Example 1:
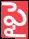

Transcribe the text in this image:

ఫై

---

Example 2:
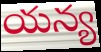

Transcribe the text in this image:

యన్య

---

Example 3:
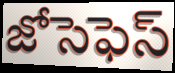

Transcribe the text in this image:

జోసెఫెస్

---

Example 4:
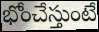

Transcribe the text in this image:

భోంచేస్తుంటే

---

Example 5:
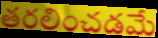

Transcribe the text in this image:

తరలించడమే